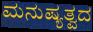
ಮನುಷ್ಯತ್ವದ